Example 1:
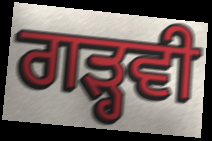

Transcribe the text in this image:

ਗੜ੍ਹਵੀ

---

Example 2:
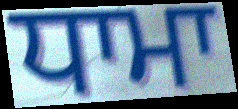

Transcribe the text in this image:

ਧਾਮਾ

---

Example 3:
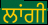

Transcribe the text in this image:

ਲਾਂਗੀ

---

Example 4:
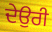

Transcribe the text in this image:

ਦੇਉਰੀ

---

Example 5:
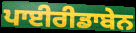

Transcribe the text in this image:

ਪਾਈਰੀਡਾਬੇਨ